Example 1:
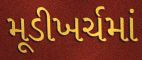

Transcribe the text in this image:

મૂડીખર્ચમાં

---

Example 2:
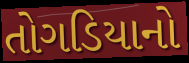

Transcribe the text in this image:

તોગડિયાનો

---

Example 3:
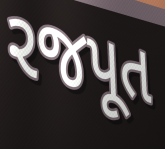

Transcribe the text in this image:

રજપૂત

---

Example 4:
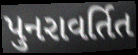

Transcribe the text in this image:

પુનરાવર્તિત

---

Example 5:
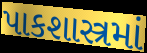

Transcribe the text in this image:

પાકશાસ્ત્રમાં